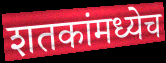
शतकांमध्येच